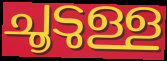
ചൂടുള്ള